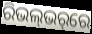
ରିଭଲ୍‌ଭର୍‌ରେ